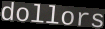
dollors